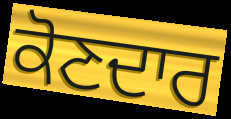
ਕੋਣਦਾਰ